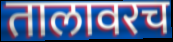
तालावरच